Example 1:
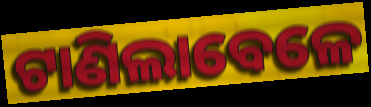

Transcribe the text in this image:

ଟାଣିଲାବେଳେ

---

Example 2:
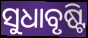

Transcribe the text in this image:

ସୁଧାବୃଷ୍ଟି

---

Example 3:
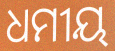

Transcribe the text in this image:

ଧମୀୟ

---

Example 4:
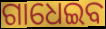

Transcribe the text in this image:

ଗାଧେଇବ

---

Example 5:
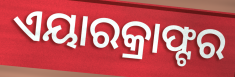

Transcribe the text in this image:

ଏୟାରକ୍ରାଫ୍ଟର